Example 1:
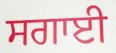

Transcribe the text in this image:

ਸਗਾਈ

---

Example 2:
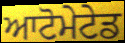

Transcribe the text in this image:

ਆਟੋਮੇਟੇਡ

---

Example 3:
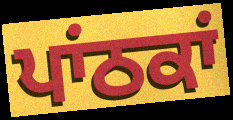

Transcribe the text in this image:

ਪਾਂਠਕਾਂ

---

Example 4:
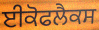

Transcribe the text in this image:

ਈਕੋਫਲੈਕਸ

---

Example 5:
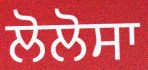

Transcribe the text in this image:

ਲੋਲੋਸਾ